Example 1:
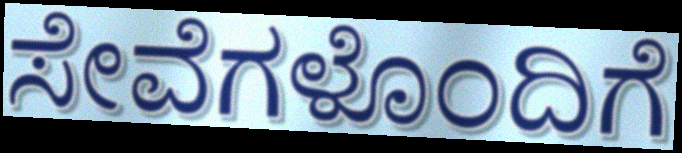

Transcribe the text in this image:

ಸೇವೆಗಳೊಂದಿಗೆ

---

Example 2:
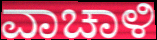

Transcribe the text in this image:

ವಾಚಾಳಿ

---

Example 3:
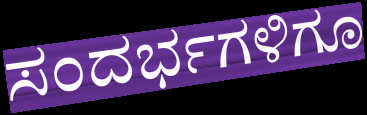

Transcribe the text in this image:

ಸಂದರ್ಭಗಳಿಗೂ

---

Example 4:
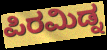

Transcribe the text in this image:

ಪಿರಮಿಡ್ನ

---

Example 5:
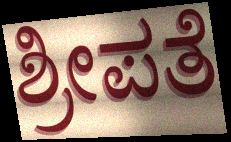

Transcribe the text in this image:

ಶ್ರೀಪತೆ